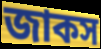
জাকস